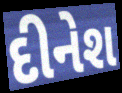
દીનેશ